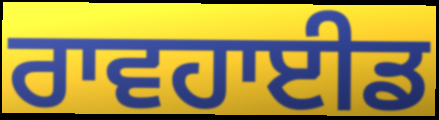
ਰਾਵਹਾਈਡ